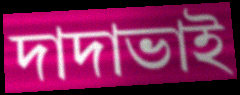
দাদাভাই